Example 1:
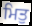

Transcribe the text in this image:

ਮਿਤੁ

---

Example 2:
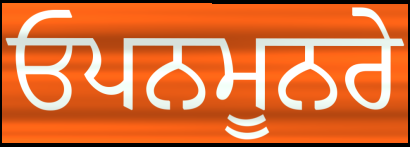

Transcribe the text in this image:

ਓਪਨਮੂਨਰੇ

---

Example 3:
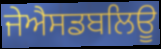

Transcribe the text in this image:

ਜੇਐਸਡਬਲਿਊ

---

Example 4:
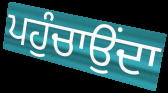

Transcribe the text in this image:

ਪਹੁੰਚਾਉਂਦਾ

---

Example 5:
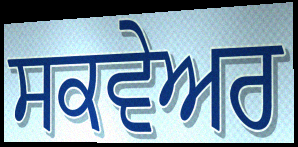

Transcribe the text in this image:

ਸਕਵੇਅਰ